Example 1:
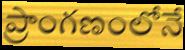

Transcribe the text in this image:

ప్రాంగణంలోనే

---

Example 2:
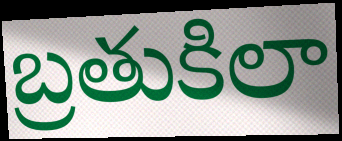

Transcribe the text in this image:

బ్రతుకిలా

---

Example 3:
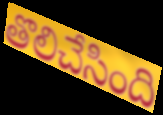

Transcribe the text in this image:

తొలిచేసింది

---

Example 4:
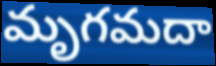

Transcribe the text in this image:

మృగమదా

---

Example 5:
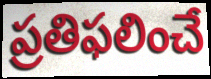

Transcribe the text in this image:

ప్రతిఫలించే